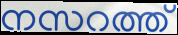
നസറത്ത്